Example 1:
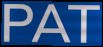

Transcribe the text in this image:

PAT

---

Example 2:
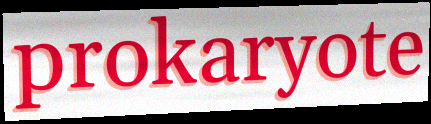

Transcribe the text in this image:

prokaryote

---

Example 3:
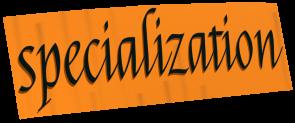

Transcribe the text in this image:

specialization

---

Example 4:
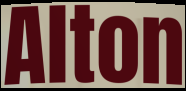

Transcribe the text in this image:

Alton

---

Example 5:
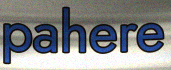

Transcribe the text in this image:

pahere